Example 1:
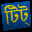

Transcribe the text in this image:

টিট্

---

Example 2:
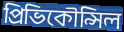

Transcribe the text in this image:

প্রিভিকৌন্সিল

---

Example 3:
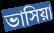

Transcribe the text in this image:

ভাসিয়া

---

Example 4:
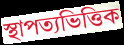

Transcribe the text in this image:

স্থাপত্যভিত্তিক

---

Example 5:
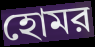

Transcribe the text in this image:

হোমর